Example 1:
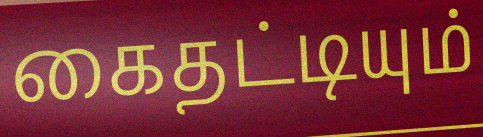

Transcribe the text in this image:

கைதட்டியும்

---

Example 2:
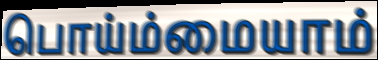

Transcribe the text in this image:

பொய்ம்மையாம்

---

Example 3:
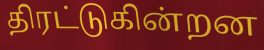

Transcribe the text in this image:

திரட்டுகின்றன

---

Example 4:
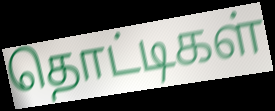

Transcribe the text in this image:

தொட்டிகள்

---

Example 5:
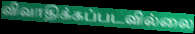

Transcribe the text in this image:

விவாதிக்கப்படவில்லை